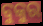
ବୁକୁର